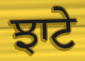
ਝਾਟੇ